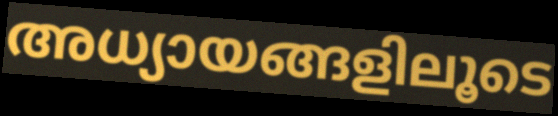
അധ്യായങ്ങളിലൂടെ